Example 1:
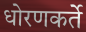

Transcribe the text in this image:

धोरणकर्ते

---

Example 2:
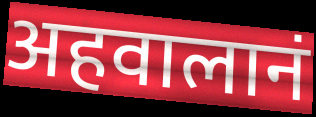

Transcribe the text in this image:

अहवालानं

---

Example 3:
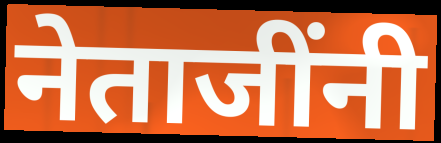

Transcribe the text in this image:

नेताजींनी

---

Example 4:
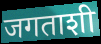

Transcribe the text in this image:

जगताशी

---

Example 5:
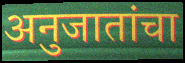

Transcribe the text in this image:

अनुजातांचा